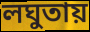
লঘুতায়